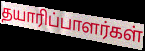
தயாரிப்பாளர்கள்